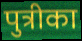
पुत्रीका